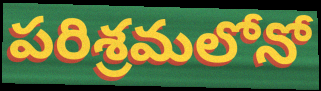
పరిశ్రమలోనో